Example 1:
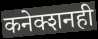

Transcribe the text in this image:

कनेक्शनही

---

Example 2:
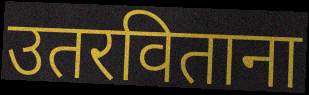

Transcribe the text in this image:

उतरविताना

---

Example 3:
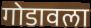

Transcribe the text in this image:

गोडावला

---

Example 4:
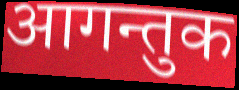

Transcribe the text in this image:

आगन्तुक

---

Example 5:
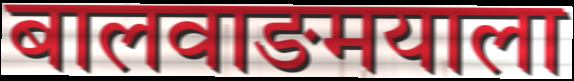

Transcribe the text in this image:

बालवाङमयाला